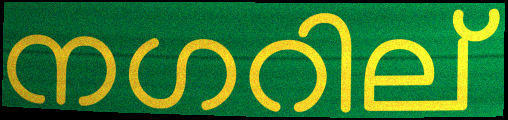
നഗറില്